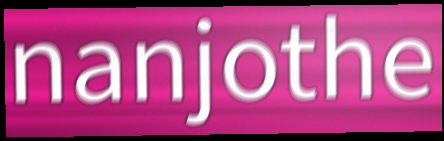
nanjothe